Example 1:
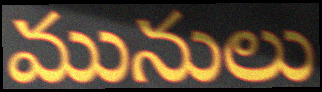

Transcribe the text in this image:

మునులు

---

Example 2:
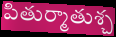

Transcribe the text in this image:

పితుర్మాతుశ్చ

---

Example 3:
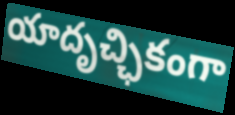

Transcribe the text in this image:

యాదృచ్ఛికంగా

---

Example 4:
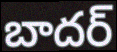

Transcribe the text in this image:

బాదర్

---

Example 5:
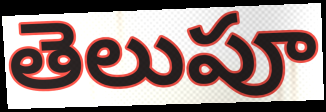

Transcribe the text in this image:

తెలుపూ